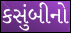
કસુંબીનો